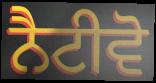
ਨੈਟੀਵੋ